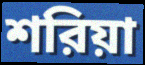
শরিয়া